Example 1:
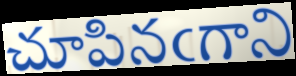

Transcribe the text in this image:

చూపినఁగాని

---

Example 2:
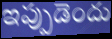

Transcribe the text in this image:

ఇప్పుడెందు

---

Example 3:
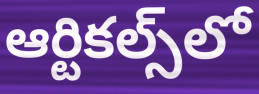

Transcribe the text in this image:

ఆర్టికల్స్‌లో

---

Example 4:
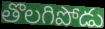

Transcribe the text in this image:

తొలగిపోడు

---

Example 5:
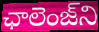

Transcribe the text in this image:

ఛాలెంజ్‌ని